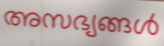
അസഭ്യങ്ങൾ